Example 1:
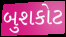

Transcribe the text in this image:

બુશકોટ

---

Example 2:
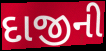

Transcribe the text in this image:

દાજીની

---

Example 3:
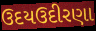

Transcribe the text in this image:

ઉદયઉદીરણા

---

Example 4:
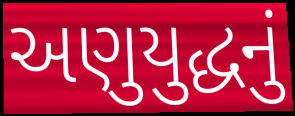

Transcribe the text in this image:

અણુયુદ્ધનું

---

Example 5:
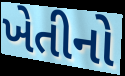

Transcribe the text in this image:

ખેતીનો